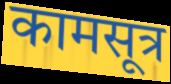
कामसूत्र